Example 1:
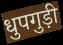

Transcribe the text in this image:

धुपगुड़ी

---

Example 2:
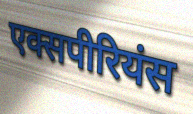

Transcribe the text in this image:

एक्सपीरियंस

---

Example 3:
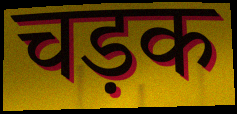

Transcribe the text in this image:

चड़क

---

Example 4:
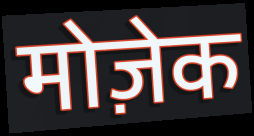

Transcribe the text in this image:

मोज़ेक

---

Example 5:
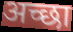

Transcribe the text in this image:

अच्छा